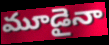
మూడైనా